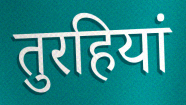
तुरहियां